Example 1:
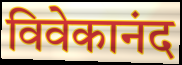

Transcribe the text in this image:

विवेकानंद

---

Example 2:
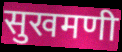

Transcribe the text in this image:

सुखमणी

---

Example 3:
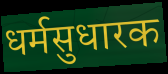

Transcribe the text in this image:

धर्मसुधारक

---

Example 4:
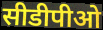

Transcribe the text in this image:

सीडीपीओ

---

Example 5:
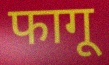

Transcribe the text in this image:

फागू